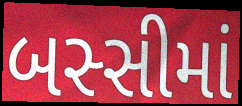
બસ્સીમાં